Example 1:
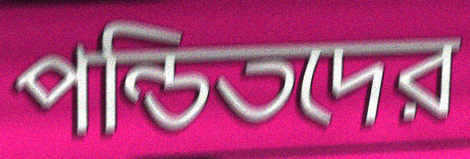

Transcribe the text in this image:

পন্ডিতদের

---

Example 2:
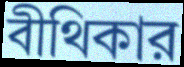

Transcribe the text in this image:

বীথিকার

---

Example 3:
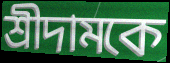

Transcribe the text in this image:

শ্রীদামকে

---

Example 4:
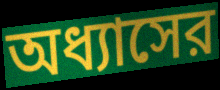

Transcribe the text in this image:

অধ্যাসের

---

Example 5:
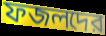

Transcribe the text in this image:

ফজলদের